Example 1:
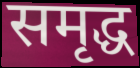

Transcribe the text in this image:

समृद्ध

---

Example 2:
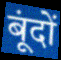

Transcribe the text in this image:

बूंदों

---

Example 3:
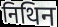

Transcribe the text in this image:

निथिन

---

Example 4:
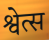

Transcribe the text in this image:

श्वेत्स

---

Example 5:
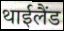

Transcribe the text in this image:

थाईलैंड